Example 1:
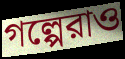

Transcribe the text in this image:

গল্পেরাও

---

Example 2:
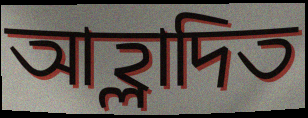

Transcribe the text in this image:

আহ্লাদিত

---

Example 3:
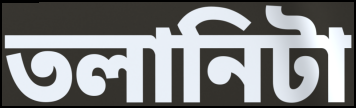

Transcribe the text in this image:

তলানিটা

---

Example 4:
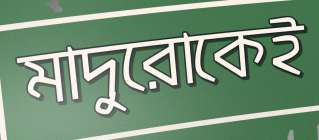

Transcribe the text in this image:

মাদুরোকেই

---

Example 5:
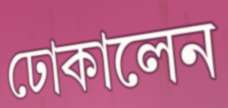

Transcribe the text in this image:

ঢোকালেন